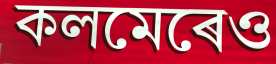
কলমেৰেও